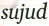
sujud